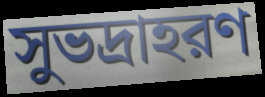
সুভদ্রাহরণ